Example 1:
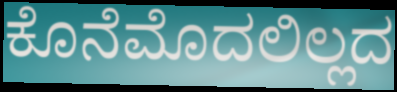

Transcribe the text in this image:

ಕೊನೆಮೊದಲಿಲ್ಲದ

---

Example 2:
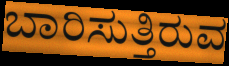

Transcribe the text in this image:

ಬಾರಿಸುತ್ತಿರುವ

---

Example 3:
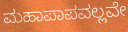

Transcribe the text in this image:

ಮಹಾಪಾಪವಲ್ಲವೇ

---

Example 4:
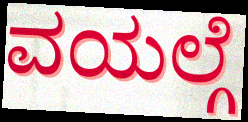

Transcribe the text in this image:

ವಯಲ್ಗೆ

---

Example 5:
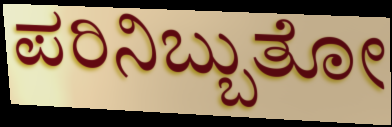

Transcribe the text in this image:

ಪರಿನಿಬ್ಬುತೋ